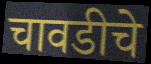
चावडीचे